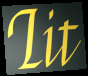
Iit